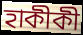
হাকীকী